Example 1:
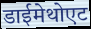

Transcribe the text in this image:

डाईमेथोएट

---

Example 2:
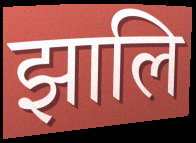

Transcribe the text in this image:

झालि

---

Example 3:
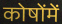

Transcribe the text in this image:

कोषोंमें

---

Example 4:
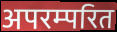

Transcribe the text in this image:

अपरम्परित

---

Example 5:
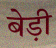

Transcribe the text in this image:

बेड़ी